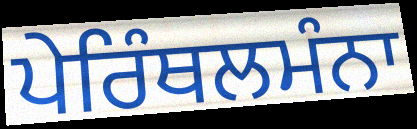
ਪੇਰਿੰਥਲਮੰਨਾ